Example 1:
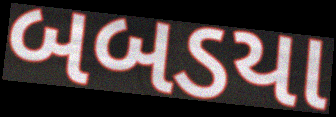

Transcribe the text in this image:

બબડયા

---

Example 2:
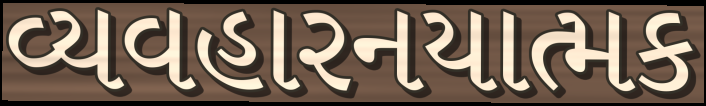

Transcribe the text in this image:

વ્યવહારનયાત્મક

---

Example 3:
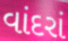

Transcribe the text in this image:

વાંદરાં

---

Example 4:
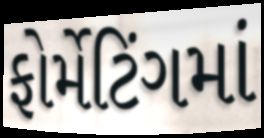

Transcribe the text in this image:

ફોર્મેટિંગમાં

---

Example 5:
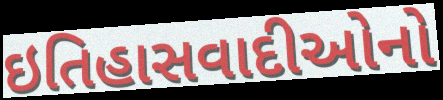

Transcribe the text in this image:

ઇતિહાસવાદીઓનો